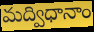
మద్విధానాం